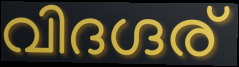
വിദഗ്ദര്